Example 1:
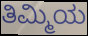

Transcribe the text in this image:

ತಿಮ್ಮಿಯ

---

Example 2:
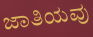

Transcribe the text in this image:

ಜಾತಿಯವು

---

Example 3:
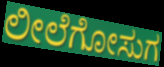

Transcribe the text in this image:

ಲೀಲೆಗೋಸುಗ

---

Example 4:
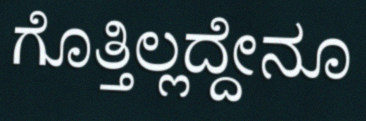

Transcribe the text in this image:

ಗೊತ್ತಿಲ್ಲದ್ದೇನೂ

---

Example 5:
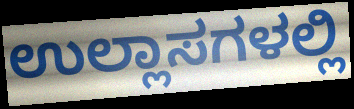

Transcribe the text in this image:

ಉಲ್ಲಾಸಗಳಲ್ಲಿ